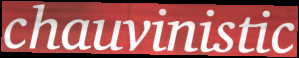
chauvinistic